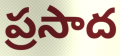
ప్రసాద